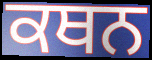
ਕਥਨ